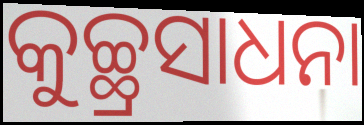
କୁଚ୍ଛ୍ରସାଧନା